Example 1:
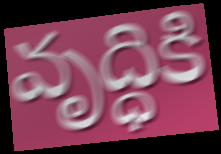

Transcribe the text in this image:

వృద్ధికి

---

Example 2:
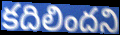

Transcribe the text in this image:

కదిలిందని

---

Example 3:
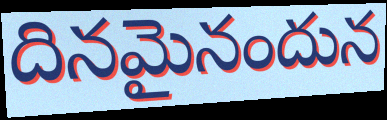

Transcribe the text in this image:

దినమైనందున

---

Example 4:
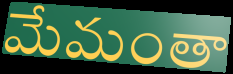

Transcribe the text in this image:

మేమంతా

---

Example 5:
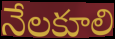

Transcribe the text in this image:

నేలకూలి